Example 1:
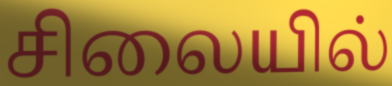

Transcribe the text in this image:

சிலையில்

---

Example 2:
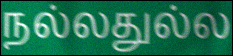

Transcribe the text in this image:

நல்லதுல்ல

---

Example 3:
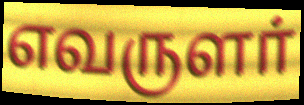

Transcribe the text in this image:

எவருளர்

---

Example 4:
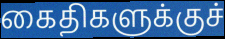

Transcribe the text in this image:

கைதிகளுக்குச்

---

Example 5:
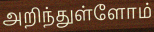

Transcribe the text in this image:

அறிந்துள்ளோம்